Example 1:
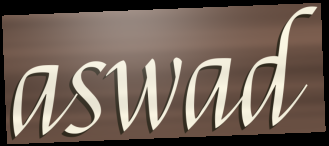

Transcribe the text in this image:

aswad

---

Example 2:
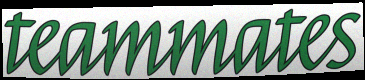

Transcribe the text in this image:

teammates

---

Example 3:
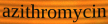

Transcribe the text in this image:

azithromycin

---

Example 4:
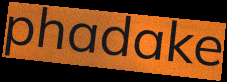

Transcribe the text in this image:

phadake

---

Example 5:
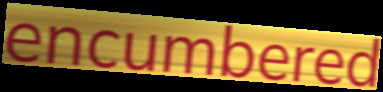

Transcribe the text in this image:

encumbered